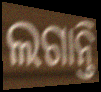
ଲଗାନ୍ତି